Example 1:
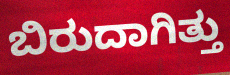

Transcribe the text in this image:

ಬಿರುದಾಗಿತ್ತು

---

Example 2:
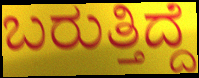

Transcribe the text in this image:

ಬರುತ್ತಿದ್ದೆ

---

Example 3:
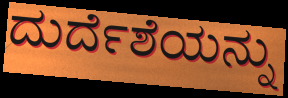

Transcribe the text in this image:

ದುರ್ದೆಶೆಯನ್ನು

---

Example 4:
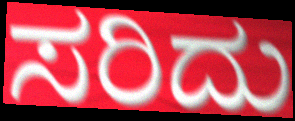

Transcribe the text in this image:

ಸರಿದು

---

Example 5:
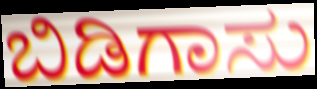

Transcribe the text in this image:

ಬಿಡಿಗಾಸು